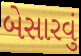
બેસારવું